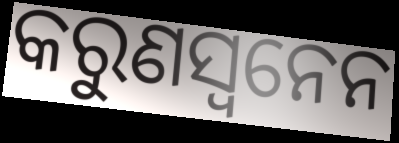
କରୁଣସ୍ଵନେନ